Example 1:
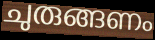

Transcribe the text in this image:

ചുരുങ്ങണം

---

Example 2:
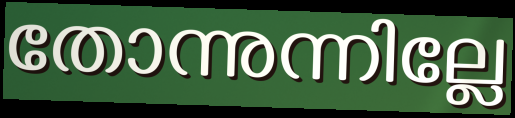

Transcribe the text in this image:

തോന്നുന്നില്ലേ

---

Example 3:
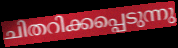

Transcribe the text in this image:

ചിതറിക്കപ്പെടുന്നു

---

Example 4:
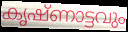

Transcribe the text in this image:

കൃഷ്ണാട്ടവും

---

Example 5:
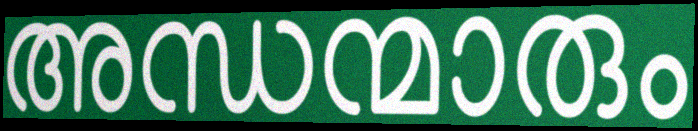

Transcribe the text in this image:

അന്ധന്മാരും